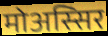
मोअस्सिर